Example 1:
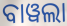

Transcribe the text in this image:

ବାୱଲା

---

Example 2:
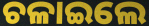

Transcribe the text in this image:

ଚଳାଇଲେ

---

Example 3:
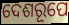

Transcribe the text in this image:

ଦେଶରୂପେ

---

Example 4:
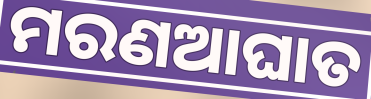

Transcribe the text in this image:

ମରଣଆଘାତ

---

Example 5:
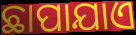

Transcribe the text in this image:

ଛାପାଯାଏ